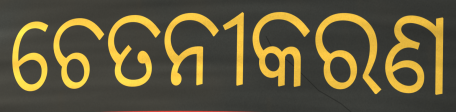
ଚେତନୀକରଣ